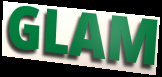
GLAM